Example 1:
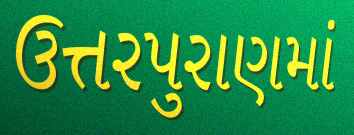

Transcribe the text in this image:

ઉત્તરપુરાણમાં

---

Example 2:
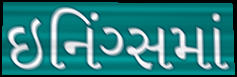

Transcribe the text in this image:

ઇનિંગ્સમાં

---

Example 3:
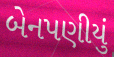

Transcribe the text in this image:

બેનપણીયું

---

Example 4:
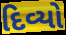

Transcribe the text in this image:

દિવ્યો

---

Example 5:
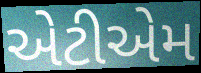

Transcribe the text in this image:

એટીએમ